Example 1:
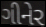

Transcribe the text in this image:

ગીનેર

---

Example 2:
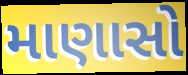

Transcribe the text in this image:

માણાસો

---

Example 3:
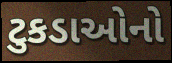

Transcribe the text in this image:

ટુકડાઓનો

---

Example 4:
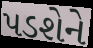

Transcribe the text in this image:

પડશેને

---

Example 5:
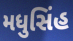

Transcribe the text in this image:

મધુસિંહ